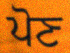
ਪੋਣ